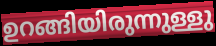
ഉറങ്ങിയിരുന്നുള്ളു